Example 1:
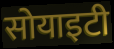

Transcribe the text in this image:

सोयाइटी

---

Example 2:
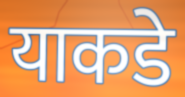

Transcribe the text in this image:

याकडे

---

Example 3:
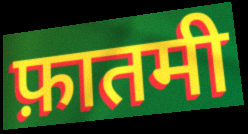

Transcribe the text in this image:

फ़ातमी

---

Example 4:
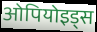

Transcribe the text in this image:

ओपियोइड्स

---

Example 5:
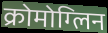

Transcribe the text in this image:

क्रोमोग्लिन